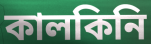
কালকিনি